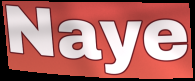
Naye